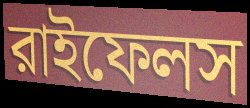
রাইফেলস